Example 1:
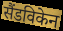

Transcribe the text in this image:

सैंडविकेन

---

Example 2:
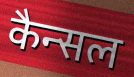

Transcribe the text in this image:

कैन्सल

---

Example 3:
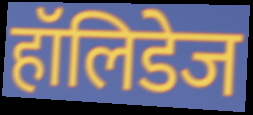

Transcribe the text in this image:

हॉलिडेज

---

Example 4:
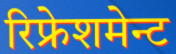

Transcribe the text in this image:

रिफ्रेशमेन्ट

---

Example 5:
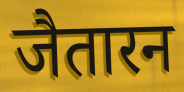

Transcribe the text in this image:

जैतारन